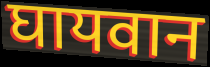
घायवान